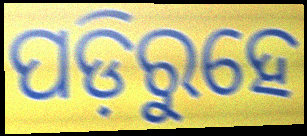
ପଡ଼ିରୁହେ